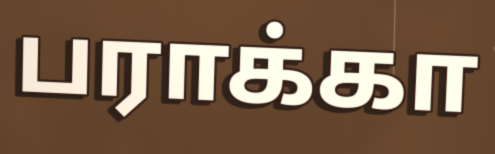
பராக்கா